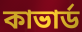
কাভার্ড